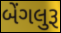
બેંગલુરૂ